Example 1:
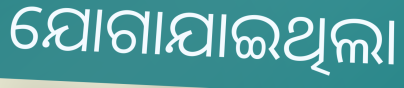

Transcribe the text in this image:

ଯୋଗାଯାଇଥିଲା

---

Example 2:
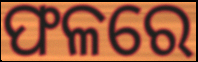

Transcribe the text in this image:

ଫଳରେ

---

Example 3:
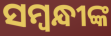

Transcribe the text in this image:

ସମ୍ବନ୍ଧୀଙ୍କ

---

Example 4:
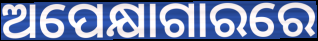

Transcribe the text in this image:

ଅପେକ୍ଷାଗାରରେ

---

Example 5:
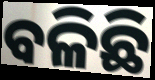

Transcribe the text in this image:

ବଳିଛି